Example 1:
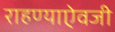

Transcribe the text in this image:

राहण्याऐवजी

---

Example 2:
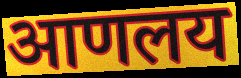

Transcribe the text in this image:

आणलय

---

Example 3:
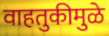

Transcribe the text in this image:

वाहतुकीमुळे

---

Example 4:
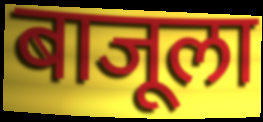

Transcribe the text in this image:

बाजूला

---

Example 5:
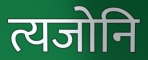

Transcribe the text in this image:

त्यजोनि